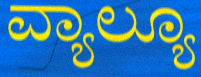
ವ್ಯಾಲ್ಯೂ